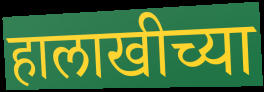
हालाखीच्या